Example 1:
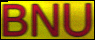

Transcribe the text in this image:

BNU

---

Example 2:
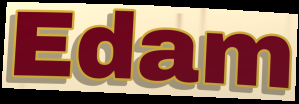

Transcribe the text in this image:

Edam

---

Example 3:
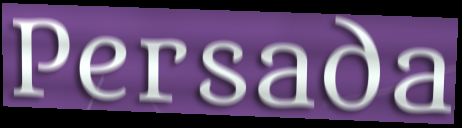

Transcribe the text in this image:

Persada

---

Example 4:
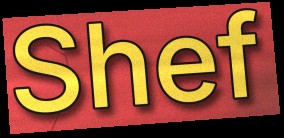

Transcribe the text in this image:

Shef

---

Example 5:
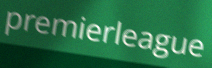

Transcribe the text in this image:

premierleague